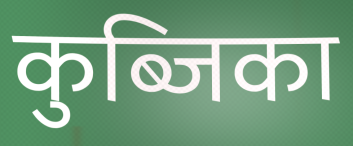
कुब्जिका